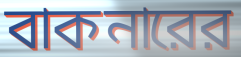
বাকনারের